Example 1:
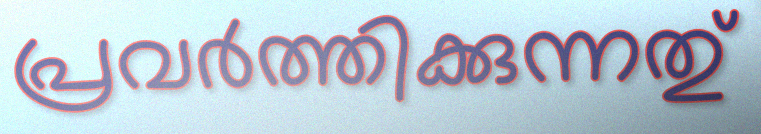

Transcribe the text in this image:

പ്രവർത്തിക്കുന്നതു്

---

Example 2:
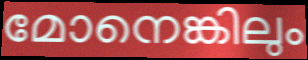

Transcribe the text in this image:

മോനെങ്കിലും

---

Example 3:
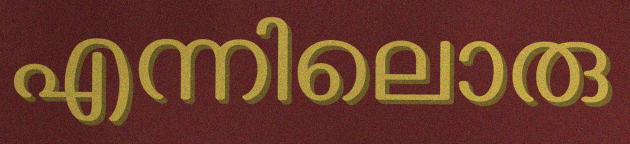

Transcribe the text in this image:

എന്നിലൊരു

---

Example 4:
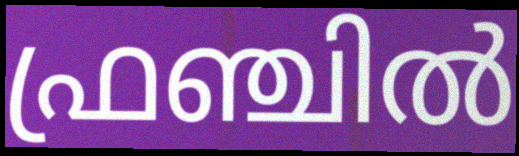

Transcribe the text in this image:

ഫ്രഞ്ചിൽ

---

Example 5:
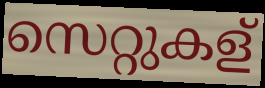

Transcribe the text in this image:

സെറ്റുകള്